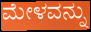
ಮೇಳವನ್ನು